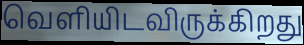
வெளியிடவிருக்கிறது